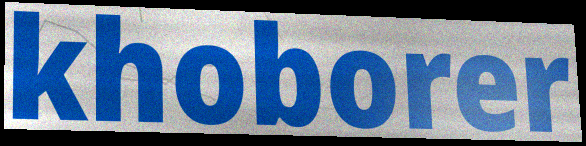
khoborer